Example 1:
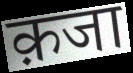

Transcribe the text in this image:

क़जा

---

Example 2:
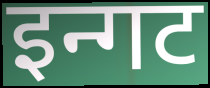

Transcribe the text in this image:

इन्गट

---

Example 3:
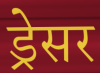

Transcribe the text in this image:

ड्रेसर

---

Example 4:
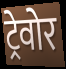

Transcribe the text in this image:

ट्रेवोर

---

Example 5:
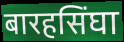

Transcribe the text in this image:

बारहसिंघा